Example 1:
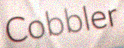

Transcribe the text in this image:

Cobbler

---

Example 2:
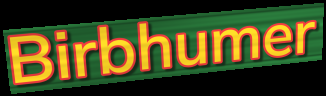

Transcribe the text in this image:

Birbhumer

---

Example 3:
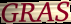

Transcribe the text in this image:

GRAS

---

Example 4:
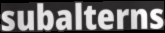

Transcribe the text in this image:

subalterns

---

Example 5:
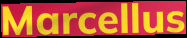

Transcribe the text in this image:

Marcellus